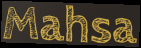
Mahsa